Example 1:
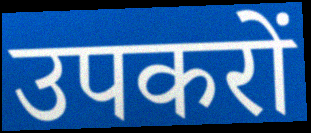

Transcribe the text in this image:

उपकरों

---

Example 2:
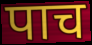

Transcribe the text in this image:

पाच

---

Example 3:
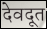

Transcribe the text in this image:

देवदूत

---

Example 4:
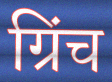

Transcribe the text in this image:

ग्रिंच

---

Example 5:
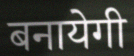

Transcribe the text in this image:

बनायेगी